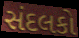
સંદલકો